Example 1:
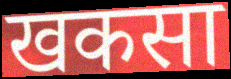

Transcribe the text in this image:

खकसा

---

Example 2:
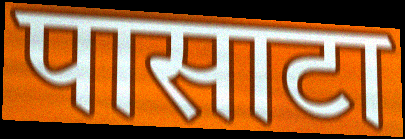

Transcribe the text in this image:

पासाटा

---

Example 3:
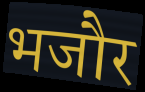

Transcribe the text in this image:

भजौर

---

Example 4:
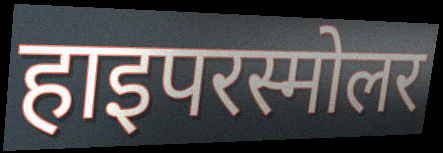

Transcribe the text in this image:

हाइपरस्मोलर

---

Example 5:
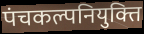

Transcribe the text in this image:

पंचकल्पनियुक्ति